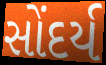
સોંદર્ય